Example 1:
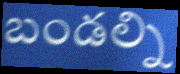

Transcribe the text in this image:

బండల్ని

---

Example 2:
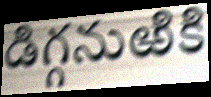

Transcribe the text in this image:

డిగ్గనుఱికి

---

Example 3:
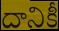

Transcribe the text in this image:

దానికీ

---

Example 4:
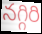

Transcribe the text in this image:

నగ్గిరి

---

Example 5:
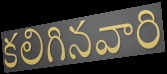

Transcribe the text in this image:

కలిగినవారి